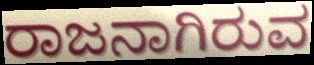
ರಾಜನಾಗಿರುವ